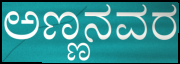
ಅಣ್ಣನವರ